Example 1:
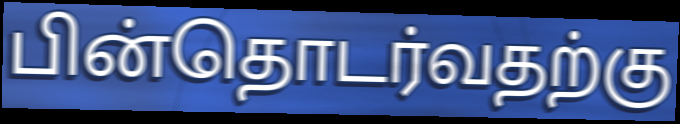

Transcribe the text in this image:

பின்தொடர்வதற்கு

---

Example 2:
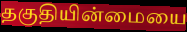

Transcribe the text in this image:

தகுதியின்மையை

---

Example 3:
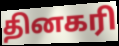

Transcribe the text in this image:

தினகரி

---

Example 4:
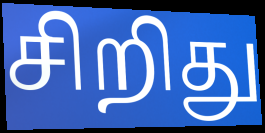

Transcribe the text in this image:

சிறிது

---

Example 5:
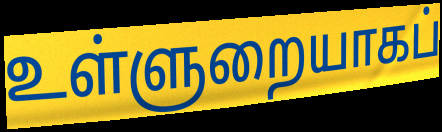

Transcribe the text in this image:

உள்ளுறையாகப்